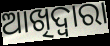
ଆଖିଦ୍ୱାରା